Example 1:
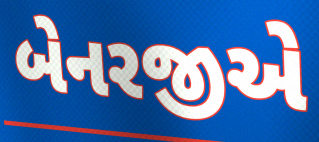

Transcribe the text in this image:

બેનરજીએ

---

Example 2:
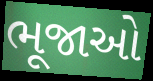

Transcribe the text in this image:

ભૂજાઓ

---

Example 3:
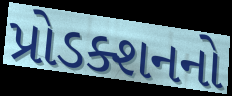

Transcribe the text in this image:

પ્રોડક્શનનો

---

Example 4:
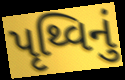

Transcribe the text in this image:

પૃથ્વિનું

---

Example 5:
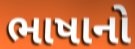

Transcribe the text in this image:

ભાષાનો